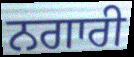
ਨਗਾਰੀ